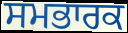
ਸਮਭਾਰਕ